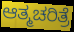
ಆತ್ಮಚರಿತ್ರೆ